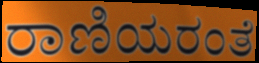
ರಾಣಿಯರಂತೆ